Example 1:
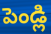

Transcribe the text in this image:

పెండ్లి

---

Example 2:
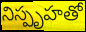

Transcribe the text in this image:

నిస్పృహతో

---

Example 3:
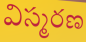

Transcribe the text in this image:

విస్మరణ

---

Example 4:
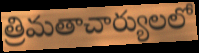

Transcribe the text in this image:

త్రిమతాచార్యులలో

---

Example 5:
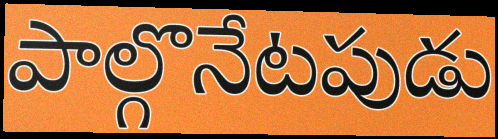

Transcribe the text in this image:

పాల్గొనేటపుడు